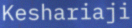
Keshariaji